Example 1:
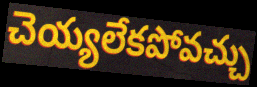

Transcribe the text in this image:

చెయ్యలేకపోవచ్చు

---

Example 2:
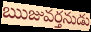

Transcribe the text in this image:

ఋజువర్తనుడు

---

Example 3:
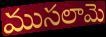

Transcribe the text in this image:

ముసలామె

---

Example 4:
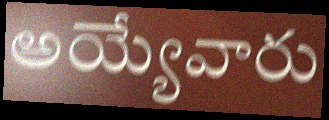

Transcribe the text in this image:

అయ్యేవారు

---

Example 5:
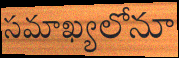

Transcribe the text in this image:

సమాఖ్యలోనూ